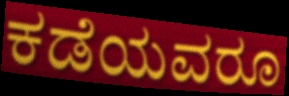
ಕಡೆಯವರೂ